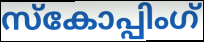
സ്കോപ്പിംഗ്